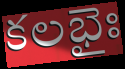
కలభైః